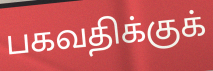
பகவதிக்குக்